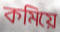
কমিয়ে